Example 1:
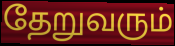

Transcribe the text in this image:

தேறுவரும்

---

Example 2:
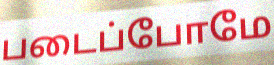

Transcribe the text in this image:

படைப்போமே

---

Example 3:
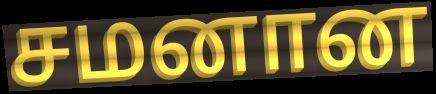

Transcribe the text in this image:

சமனான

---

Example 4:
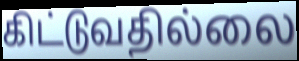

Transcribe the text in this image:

கிட்டுவதில்லை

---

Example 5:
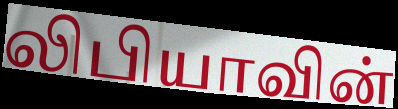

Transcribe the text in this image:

லிபியாவின்